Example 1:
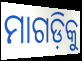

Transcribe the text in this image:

ମାଗଡ଼ିକୁ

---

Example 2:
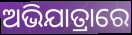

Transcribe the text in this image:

ଅଭିଯାତ୍ରାରେ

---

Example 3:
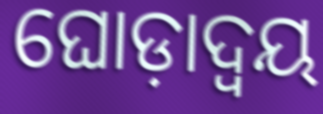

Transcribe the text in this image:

ଘୋଡ଼ାଦ୍ୱୟ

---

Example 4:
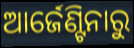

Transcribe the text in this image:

ଆର୍ଜେଣ୍ଟିନାରୁ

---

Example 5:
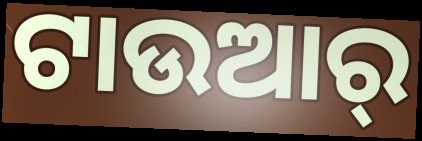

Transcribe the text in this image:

ଟାଉଆର୍